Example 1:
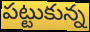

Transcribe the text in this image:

పట్టుకున్న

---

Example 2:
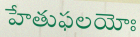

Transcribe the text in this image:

హేతుఫలయోః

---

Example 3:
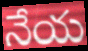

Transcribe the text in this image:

నేయ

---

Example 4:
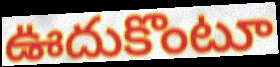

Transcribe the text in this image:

ఊదుకొంటూ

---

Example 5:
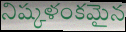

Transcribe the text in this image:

నిష్కళంకమైన